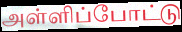
அள்ளிப்போட்டு